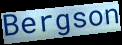
Bergson